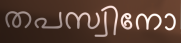
തപസ്വിനോ